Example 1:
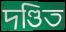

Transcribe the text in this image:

দণ্ডিত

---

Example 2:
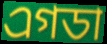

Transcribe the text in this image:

এগডা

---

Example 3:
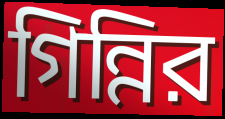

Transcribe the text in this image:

গিন্নির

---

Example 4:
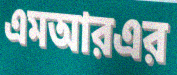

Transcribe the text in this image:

এমআরএর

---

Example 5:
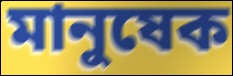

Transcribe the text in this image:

মানুষেক